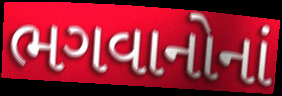
ભગવાનોનાં